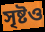
সৃষ্টও